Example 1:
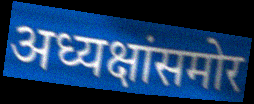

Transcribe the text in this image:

अध्यक्षांसमोर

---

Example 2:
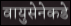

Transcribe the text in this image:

वायुसेनेकडे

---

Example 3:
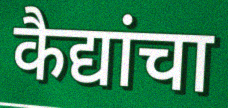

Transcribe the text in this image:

कैद्यांचा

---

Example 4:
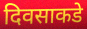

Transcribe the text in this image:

दिवसाकडे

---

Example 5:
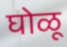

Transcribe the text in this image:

घोळू